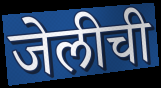
जेलीची